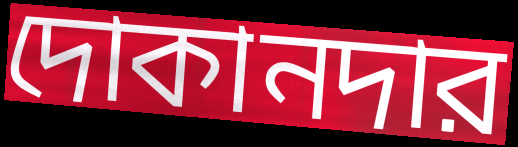
দোকানদার